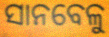
ସାନବେଳୁ